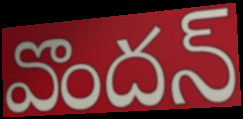
వొందన్